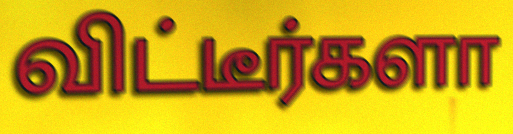
விட்டீர்களா